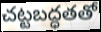
చట్టబద్ధతతో